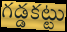
గడ్డకట్టు